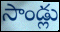
సాండ్లు